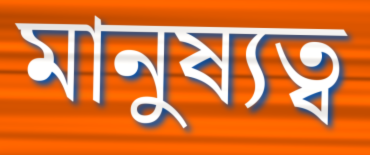
মানুষ্যত্ব